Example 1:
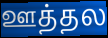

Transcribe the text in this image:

ஊத்தல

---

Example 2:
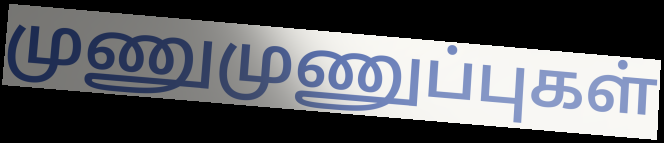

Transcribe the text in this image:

முணுமுணுப்புகள்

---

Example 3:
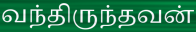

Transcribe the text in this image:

வந்திருந்தவன்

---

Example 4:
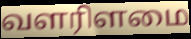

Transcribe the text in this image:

வளரிளமை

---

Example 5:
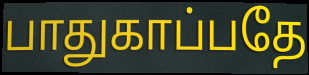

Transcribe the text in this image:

பாதுகாப்பதே